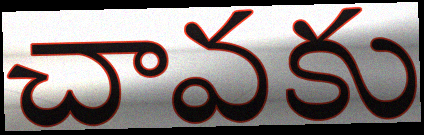
చావకు